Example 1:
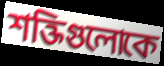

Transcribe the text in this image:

শক্তিগুলোকে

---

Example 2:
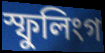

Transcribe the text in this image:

স্ফুলিংগ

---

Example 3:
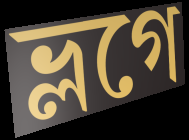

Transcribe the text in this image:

ভ্লগে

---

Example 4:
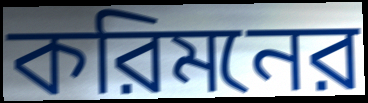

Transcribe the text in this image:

করিমনের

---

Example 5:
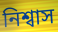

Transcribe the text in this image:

নিশ্বাস